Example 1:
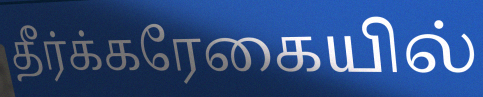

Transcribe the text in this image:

தீர்க்கரேகையில்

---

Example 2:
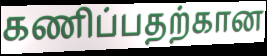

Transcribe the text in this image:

கணிப்பதற்கான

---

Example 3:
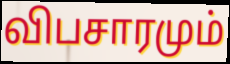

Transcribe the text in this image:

விபசாரமும்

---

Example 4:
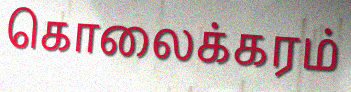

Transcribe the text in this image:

கொலைக்கரம்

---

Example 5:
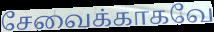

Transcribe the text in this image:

சேவைக்காகவே